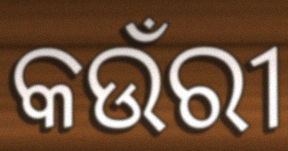
କଉଁରୀ